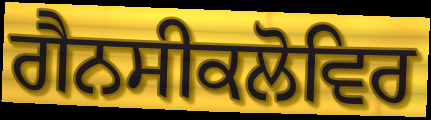
ਗੈਨਸੀਕਲੋਵਿਰ